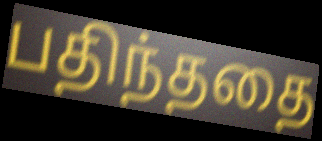
பதிந்ததை